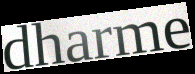
dharme